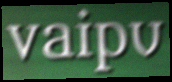
vaipu